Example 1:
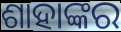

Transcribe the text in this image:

ଶାହାଙ୍କର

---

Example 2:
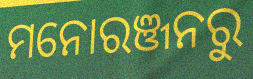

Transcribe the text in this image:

ମନୋରଞ୍ଜନରୁ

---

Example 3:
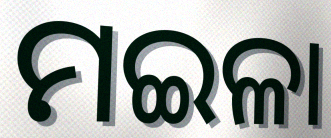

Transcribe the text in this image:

ମଇଳା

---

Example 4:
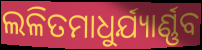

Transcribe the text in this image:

ଲଳିତମାଧୁର୍ଯ୍ୟାର୍ଣ୍ଣବ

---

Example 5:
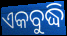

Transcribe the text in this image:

ଏକବୁଦ୍ଧି